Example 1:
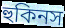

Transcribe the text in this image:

হুকিনস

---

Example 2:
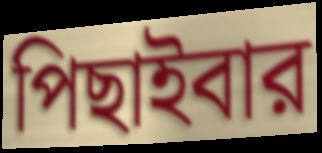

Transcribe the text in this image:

পিছাইবার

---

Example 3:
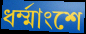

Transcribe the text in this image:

ধর্ম্মাংশে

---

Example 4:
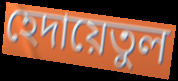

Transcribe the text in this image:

হেদায়েতুল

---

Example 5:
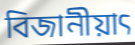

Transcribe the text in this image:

বিজানীয়াৎ